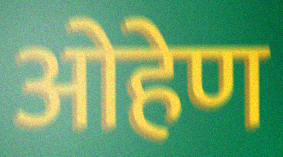
ओहेण